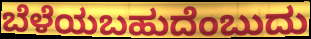
ಬೆಳೆಯಬಹುದೆಂಬುದು